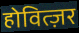
होवित्ज़र